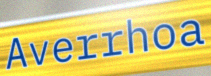
Averrhoa